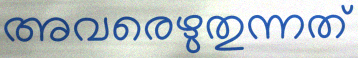
അവരെഴുതുന്നത്